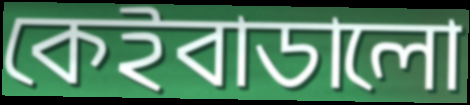
কেইবাডালো